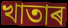
খাতাৰ